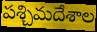
పశ్చిమదేశాల